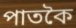
পাতকৈ